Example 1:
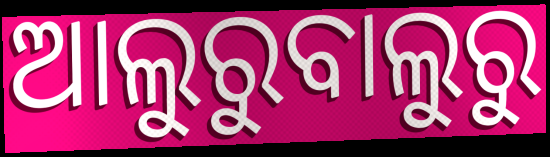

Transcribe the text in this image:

ଆଲୁରୁବାଲୁରୁ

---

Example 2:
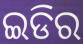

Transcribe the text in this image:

ଇଡିର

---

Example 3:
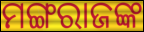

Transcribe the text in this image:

ମଙ୍ଗରାଜଙ୍କ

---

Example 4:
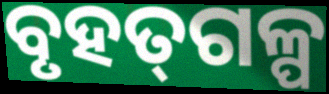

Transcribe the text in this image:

ବୃହତ୍‌ଗଳ୍ପ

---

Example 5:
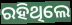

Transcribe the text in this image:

ରହିଥିଲେ